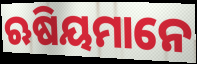
ଋଷିୟମାନେ